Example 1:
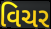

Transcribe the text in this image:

વિચર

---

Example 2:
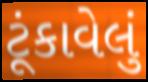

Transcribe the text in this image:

ટૂંકાવેલું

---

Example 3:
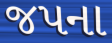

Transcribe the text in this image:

જપના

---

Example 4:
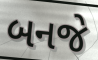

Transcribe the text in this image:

બનજે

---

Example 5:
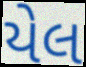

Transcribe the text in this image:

યેલ